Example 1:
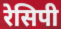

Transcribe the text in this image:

रेसिपी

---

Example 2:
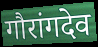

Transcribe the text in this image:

गौरांगदेव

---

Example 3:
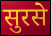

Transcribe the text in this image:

सुरसे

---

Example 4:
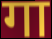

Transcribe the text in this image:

गा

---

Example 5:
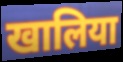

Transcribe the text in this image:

खालिया